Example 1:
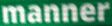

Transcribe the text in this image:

manner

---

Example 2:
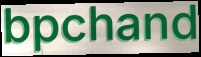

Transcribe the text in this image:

bpchand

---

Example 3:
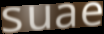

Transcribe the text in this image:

suae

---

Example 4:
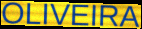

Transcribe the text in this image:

OLIVEIRA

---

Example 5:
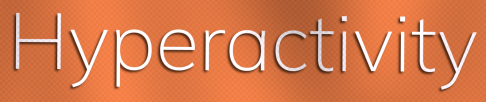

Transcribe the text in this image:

Hyperactivity